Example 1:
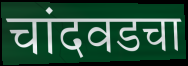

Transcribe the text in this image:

चांदवडचा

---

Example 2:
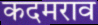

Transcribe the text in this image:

कदमराव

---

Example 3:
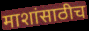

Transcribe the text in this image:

माशांसाठीच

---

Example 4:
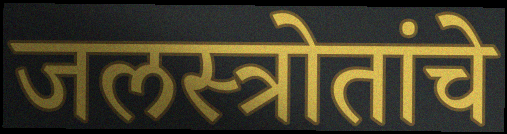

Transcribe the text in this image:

जलस्त्रोतांचे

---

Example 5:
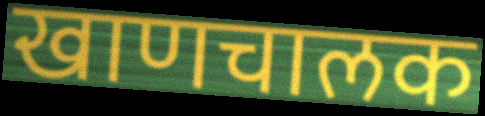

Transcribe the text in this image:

खाणचालक